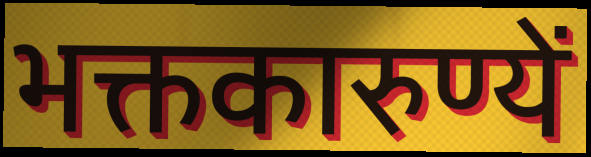
भक्तकारुण्यें